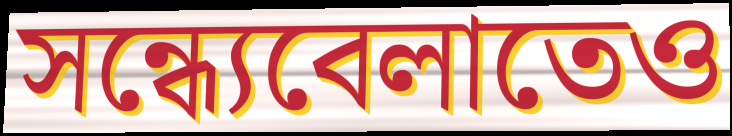
সন্ধ্যেবেলাতেও